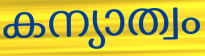
കന്യാത്വം